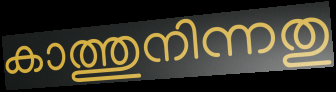
കാത്തുനിന്നതു